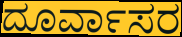
ದೂರ್ವಾಸರ